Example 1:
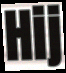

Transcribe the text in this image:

Hij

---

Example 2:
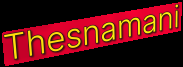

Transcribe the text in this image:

Thesnamani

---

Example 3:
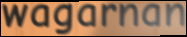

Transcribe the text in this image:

wagarnan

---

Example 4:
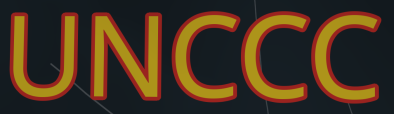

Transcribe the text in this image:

UNCCC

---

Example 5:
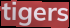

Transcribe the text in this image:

tigers